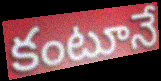
కంటూనే